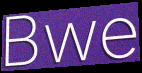
Bwe